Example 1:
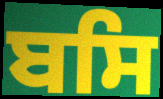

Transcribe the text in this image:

ਬਸਿ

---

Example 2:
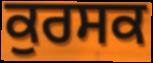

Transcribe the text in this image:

ਕੁਰਸਕ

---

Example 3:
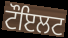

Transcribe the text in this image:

ਟੌਇਲਟ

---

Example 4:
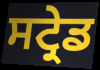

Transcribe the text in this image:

ਸਟ੍ਰੇਡ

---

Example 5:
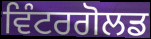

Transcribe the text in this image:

ਵਿੰਟਰਗੋਲਡ